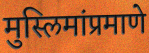
मुस्लिमांप्रमाणे